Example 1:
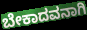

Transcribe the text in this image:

ಬೇಕಾದವನಾಗಿ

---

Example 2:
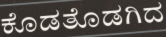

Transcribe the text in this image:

ಕೊಡತೊಡಗಿದ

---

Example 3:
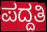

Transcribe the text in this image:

ಪದ್ದತಿ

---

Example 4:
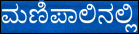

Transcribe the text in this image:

ಮಣಿಪಾಲಿನಲ್ಲಿ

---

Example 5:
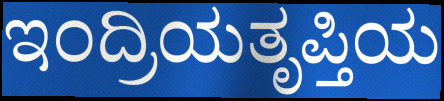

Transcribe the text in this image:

ಇಂದ್ರಿಯತೃಪ್ತಿಯ